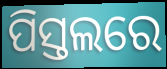
ପିସ୍ତଲରେ